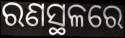
ରଣସ୍ଥଳରେ